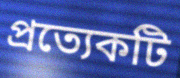
প্ৰত্যেকটি